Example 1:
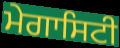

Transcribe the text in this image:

ਮੇਗਾਸਿਟੀ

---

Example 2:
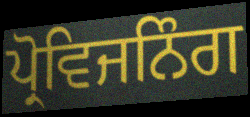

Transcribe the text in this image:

ਪ੍ਰੋਵਿਜਨਿੰਗ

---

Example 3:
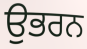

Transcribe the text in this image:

ਉਭਰਨ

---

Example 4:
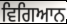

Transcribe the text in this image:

ਵਿਗਿਆਨ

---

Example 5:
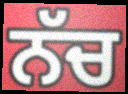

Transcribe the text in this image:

ਨੱਚ